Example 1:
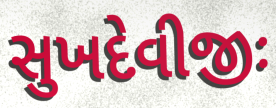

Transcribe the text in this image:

સુખદેવીજીઃ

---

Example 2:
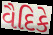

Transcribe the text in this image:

વૈદિકે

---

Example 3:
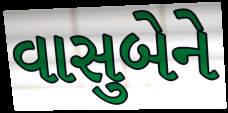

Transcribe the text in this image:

વાસુબેને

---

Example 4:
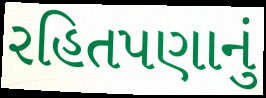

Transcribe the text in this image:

રહિતપણાનું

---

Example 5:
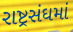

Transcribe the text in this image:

રાષ્ટ્રસંઘમાં